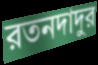
রতনদাদুর